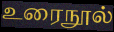
உரைநூல்